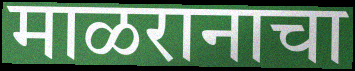
माळरानाचा